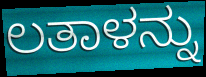
ಲತಾಳನ್ನು